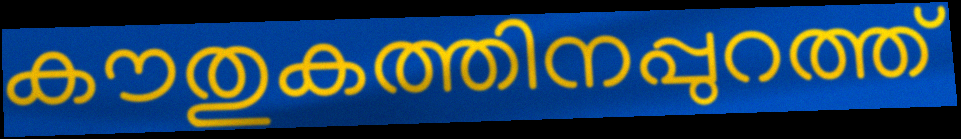
കൗതുകത്തിനപ്പുറത്ത്